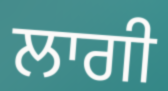
ਲਾਗੀ